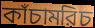
কাঁচামরিচ